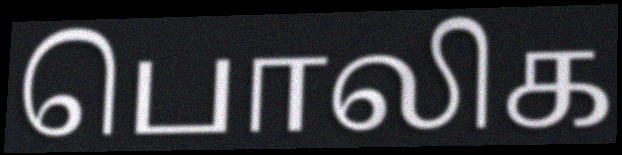
பொலிக